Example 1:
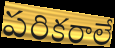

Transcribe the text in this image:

పరికరాలే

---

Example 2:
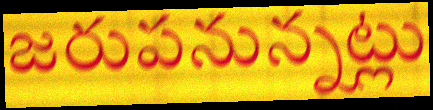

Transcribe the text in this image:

జరుపనున్నట్లు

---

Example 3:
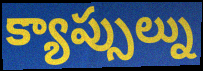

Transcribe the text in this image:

క్యాప్సుల్ను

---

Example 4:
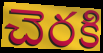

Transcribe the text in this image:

చెరకి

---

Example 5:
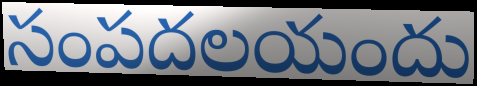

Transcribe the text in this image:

సంపదలయందు